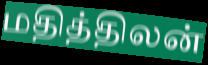
மதித்திலன்